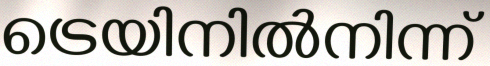
ട്രെയിനിൽനിന്ന്